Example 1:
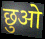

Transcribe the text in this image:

छुओ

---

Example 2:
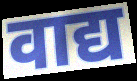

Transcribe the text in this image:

वाद्य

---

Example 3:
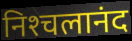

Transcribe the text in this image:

निश्चलानंद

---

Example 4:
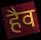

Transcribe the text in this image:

हैव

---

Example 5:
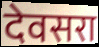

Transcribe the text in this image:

देवसरा